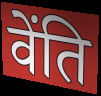
वेंति